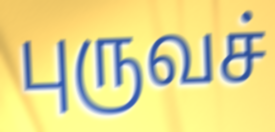
புருவச்